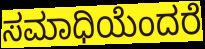
ಸಮಾಧಿಯೆಂದರೆ